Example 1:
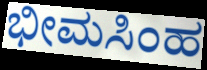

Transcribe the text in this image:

ಭೀಮಸಿಂಹ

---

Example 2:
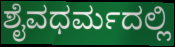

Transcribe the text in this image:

ಶೈವಧರ್ಮದಲ್ಲಿ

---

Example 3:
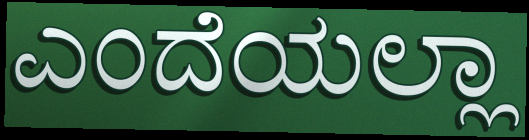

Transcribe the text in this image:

ಎಂದೆಯಲ್ಲಾ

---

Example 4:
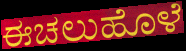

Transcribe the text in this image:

ಈಚಲುಹೊಳೆ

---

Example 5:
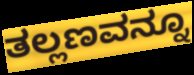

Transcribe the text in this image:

ತಲ್ಲಣವನ್ನೂ